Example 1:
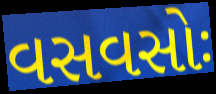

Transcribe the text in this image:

વસવસોઃ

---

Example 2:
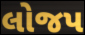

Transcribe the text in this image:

લોજપ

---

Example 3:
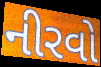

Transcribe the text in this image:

નીરવો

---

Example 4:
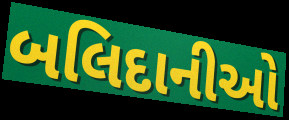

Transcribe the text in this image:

બલિદાનીઓ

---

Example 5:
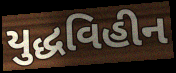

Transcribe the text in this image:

યુદ્ધવિહીન